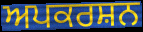
ਅਪਕਰਸ਼ਨ